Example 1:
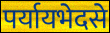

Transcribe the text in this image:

पर्यायभेदसे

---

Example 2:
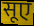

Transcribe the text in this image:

सूए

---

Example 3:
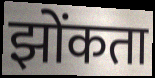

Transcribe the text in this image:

झोंकता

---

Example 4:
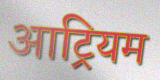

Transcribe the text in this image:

आट्रियम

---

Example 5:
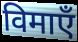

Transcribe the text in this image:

विमाएँ